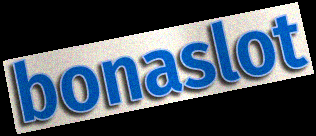
bonaslot